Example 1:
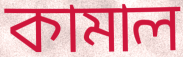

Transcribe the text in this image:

কামাল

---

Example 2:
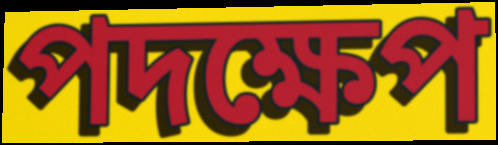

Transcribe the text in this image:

পদক্ষেপ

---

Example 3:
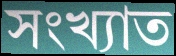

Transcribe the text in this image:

সংখ্যাত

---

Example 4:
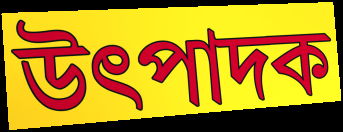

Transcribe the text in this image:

উৎপাদক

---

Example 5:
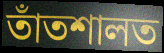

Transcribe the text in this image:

তাঁতশালত